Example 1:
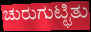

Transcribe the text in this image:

ಚುರುಗುಟ್ಟಿತು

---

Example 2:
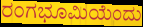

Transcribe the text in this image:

ರಂಗಭೂಮಿಯೆಂದು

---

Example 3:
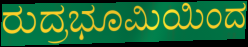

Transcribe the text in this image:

ರುದ್ರಭೂಮಿಯಿಂದ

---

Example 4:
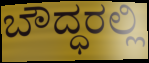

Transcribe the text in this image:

ಬೌದ್ಧರಲ್ಲಿ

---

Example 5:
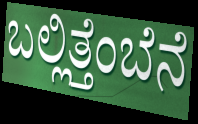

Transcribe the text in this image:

ಬಲ್ಲಿತ್ತೆಂಬೆನೆ